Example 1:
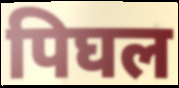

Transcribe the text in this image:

पिघल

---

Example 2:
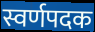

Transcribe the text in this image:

स्वर्णपदक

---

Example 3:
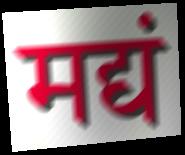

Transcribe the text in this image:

मद्यं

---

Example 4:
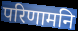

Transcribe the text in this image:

परिणामनि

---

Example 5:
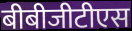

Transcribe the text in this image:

बीबीजीटीएस